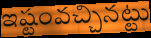
ఇష్టంవచ్చినట్టు